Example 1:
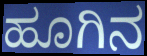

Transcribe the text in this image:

ಹೂಗಿನ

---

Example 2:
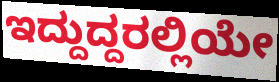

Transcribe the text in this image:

ಇದ್ದುದ್ದರಲ್ಲಿಯೇ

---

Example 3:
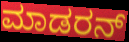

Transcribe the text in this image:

ಮಾಡರನ್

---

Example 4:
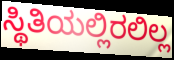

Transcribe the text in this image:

ಸ್ಥಿತಿಯಲ್ಲಿರಲಿಲ್ಲ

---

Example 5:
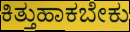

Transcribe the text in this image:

ಕಿತ್ತುಹಾಕಬೇಕು